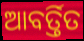
ଆବର୍ତ୍ତିତ